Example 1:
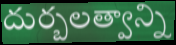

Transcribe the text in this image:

దుర్బలత్వాన్ని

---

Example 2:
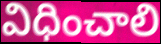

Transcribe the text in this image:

విధించాలి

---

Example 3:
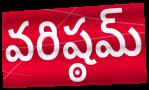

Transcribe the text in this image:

వరిష్ఠమ్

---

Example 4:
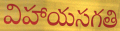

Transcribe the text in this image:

విహాయసగతి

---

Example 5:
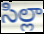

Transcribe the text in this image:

సిల్లా